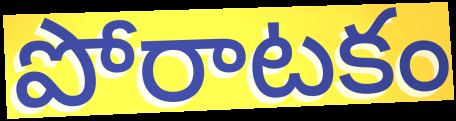
పోరాటకం